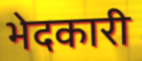
भेदकारी